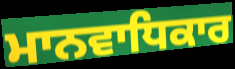
ਮਾਨਵਾਧਿਕਾਰ